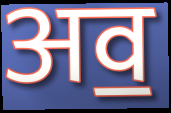
अव॒